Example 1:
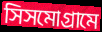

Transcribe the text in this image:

সিসমোগ্রামে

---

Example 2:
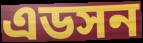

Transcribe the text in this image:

এডসন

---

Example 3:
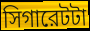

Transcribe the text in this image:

সিগারেটটা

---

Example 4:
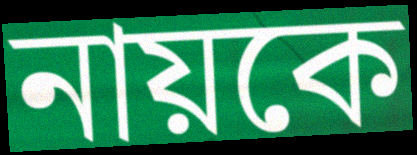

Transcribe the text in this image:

নায়কে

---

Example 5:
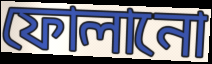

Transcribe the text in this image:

ফোলানো